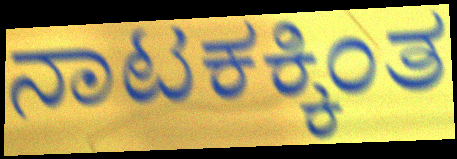
ನಾಟಕಕ್ಕಿಂತ